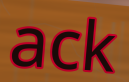
ack